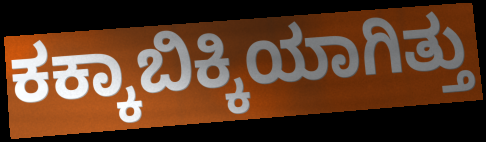
ಕಕ್ಕಾಬಿಕ್ಕಿಯಾಗಿತ್ತು